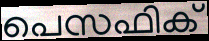
പെസഫിക്